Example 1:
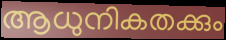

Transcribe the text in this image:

ആധുനികതക്കും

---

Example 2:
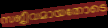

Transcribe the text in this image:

സജീവമായതോടെ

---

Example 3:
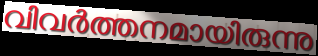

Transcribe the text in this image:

വിവർത്തനമായിരുന്നു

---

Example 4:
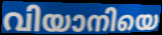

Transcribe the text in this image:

വിയാനിയെ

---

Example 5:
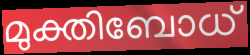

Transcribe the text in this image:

മുക്തിബോധ്